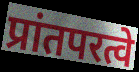
प्रांतपरत्वे